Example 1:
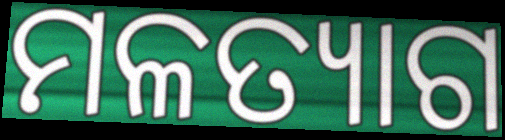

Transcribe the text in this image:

ମଳତ୍ୟାଗ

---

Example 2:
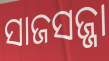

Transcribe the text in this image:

ସାଜସଜ୍ଜା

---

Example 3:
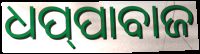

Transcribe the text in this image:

ଧପ୍‌ପାବାଜ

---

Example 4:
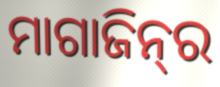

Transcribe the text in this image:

ମାଗାଜିନ୍‍ର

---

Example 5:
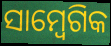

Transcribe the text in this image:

ସାମ୍ବେଗିକ